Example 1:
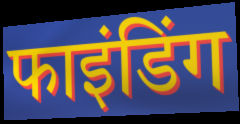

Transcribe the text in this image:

फाइंडिंग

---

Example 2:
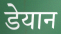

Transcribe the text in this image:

डेयान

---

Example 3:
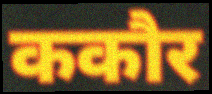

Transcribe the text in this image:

ककौर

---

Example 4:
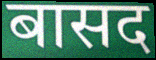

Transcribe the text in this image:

बासद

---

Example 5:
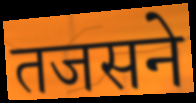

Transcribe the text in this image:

तजसने